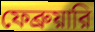
ফেব্রুয়ারি